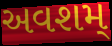
અવશમ્